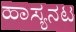
ಹಾಸ್ಯನಟ